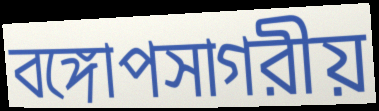
বঙ্গোপসাগরীয়